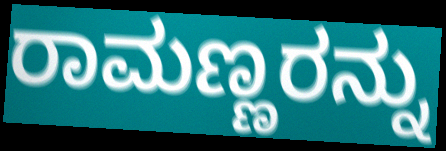
ರಾಮಣ್ಣರನ್ನು